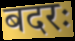
बदरः